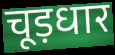
चूड़धार